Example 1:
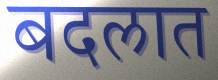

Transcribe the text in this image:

बदलात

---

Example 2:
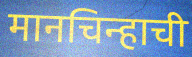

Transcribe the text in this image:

मानचिन्हाची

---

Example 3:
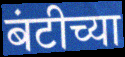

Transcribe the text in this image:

बंटीच्या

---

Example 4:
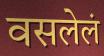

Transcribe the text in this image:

वसलेलं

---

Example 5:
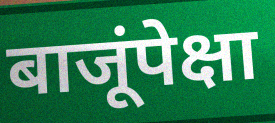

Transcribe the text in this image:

बाजूंपेक्षा